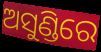
ଅସୁଣ୍ଡିରେ